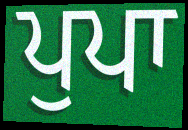
ਪੁਪਾ